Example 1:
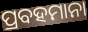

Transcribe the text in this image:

ପ୍ରବହମାନା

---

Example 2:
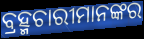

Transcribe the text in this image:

ବ୍ରହ୍ମଚାରୀମାନଙ୍କର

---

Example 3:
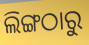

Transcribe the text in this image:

ଲିଙ୍ଗଠାରୁ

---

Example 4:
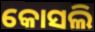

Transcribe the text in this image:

କୋସଲି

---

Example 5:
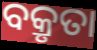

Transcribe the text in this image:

ବକ୍ରୃତା